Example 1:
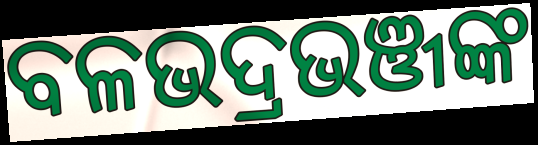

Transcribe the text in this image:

ବଳଭଦ୍ରଭଞ୍ଜଙ୍କ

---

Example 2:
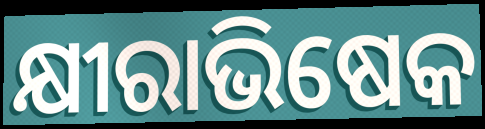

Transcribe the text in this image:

କ୍ଷୀରାଭିଷେକ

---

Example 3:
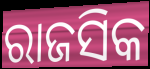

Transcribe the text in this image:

ରାଜସିକ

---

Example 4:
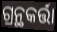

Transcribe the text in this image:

ଗ୍ରନ୍ଥକର୍ତ୍ତା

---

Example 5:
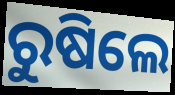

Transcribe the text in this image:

ରୁଷିଲେ